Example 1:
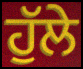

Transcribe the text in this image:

ਹੁੱਲੇ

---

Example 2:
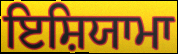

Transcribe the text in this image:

ਇਸ਼ਿਯਾਮਾ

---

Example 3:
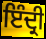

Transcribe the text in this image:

ਇੰਦ੍ਰੀ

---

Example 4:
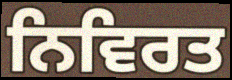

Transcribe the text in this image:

ਨਿਵਿਰਤ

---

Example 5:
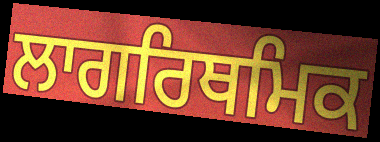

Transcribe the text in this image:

ਲਾਗਰਿਥਮਿਕ